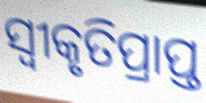
ସ୍ବୀକୃତିପ୍ରାପ୍ତ